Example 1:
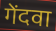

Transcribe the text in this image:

गेंदवा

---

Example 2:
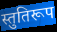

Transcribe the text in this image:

स्तुतिरूप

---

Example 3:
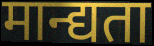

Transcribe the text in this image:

मान्द्यता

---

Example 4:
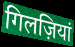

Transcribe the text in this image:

गिलज़ियां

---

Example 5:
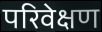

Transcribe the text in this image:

परिवेक्षण